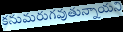
కనుమరుగవుతున్నాయని